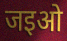
जइओ